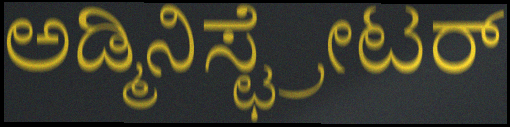
ಅಡ್ಮಿನಿಸ್ಟ್ರೇಟರ್